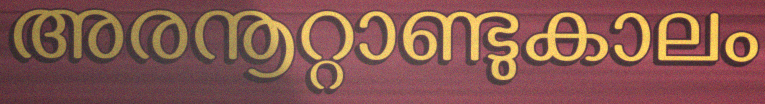
അരനൂറ്റാണ്ടുകാലം